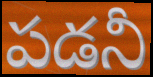
పడనీ